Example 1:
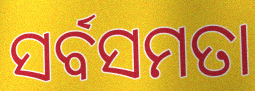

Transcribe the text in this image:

ସର୍ବସମତା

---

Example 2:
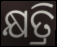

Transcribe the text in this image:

କ୍ଷତ୍ରି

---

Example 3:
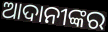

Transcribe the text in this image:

ଆଦାନୀଙ୍କର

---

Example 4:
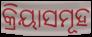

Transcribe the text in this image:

କ୍ରିୟାସମୂହ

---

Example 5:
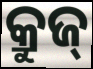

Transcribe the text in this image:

କ୍ରୁଜ୍